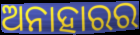
ଅନାହାରର